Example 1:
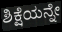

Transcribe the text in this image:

ಶಿಕ್ಷೆಯನ್ನೇ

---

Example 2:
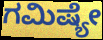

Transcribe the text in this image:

ಗಮಿಷ್ಯೇ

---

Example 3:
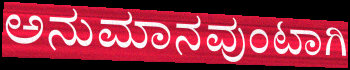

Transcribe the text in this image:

ಅನುಮಾನವುಂಟಾಗಿ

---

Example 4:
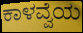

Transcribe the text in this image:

ಕಾಳವ್ವೆಯ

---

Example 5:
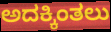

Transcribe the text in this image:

ಅದಕ್ಕಿಂತಲು